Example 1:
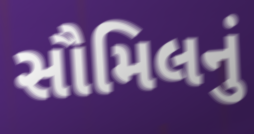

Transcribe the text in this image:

સૌમિલનું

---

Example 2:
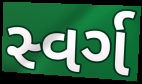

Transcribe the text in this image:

સ્વર્ગ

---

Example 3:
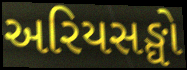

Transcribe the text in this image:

અરિયસઙ્ઘો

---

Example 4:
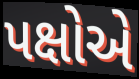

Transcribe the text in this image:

પક્ષોએ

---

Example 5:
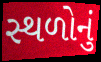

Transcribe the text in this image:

સ્થળોનું